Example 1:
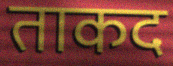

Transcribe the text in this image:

ताकद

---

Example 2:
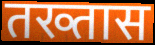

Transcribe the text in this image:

तख्तास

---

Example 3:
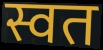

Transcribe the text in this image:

स्वत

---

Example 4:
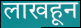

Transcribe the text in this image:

लाखहून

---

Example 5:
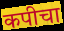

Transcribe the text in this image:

कपीचा